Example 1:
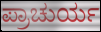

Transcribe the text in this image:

ಪ್ರಾಚುರ್ಯ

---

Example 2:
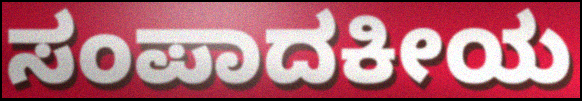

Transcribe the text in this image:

ಸಂಪಾದಕೀಯ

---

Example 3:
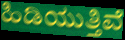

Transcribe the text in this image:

ಹಿಡಿಯುತ್ತಿವೆ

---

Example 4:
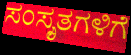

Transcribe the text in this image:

ಸಂಸ್ಕೃತಗಳಿಗೆ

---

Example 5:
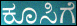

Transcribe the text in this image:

ಕೂಸಿಗೆ